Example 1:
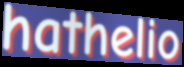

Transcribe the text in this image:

hathelio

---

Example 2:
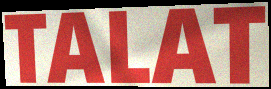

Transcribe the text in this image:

TALAT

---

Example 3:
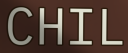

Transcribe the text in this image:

CHIL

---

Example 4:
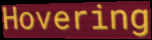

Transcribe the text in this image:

Hovering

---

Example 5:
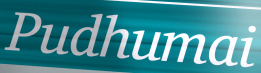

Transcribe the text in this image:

Pudhumai